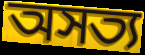
অসত্য